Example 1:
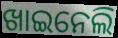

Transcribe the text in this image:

ଖାଇନେଲି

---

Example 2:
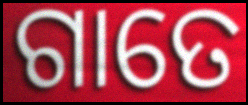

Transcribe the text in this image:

ଗାତେ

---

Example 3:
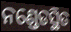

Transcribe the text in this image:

ନଣ୍ଡେଡସ୍ଥିତ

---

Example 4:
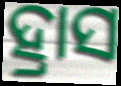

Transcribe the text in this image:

ହ୍ରାସ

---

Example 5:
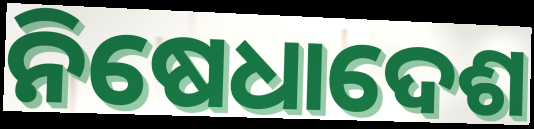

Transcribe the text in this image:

ନିଷେଧାଦେଶ